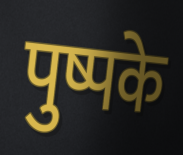
पुष्पके